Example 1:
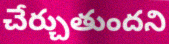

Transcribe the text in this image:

చేర్చుతుందని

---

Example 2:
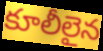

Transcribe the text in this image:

కూలీలైన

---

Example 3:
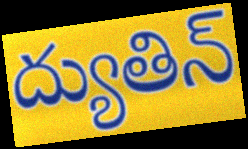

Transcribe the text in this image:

ద్యుతిన్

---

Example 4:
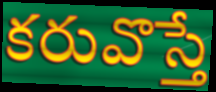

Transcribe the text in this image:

కరువొస్తే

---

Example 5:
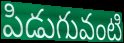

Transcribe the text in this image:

పిడుగువంటి